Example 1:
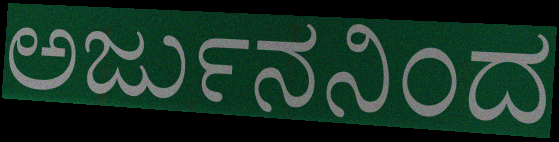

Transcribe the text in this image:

ಅರ್ಜುನನಿಂದ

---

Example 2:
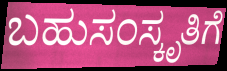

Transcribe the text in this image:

ಬಹುಸಂಸ್ಕೃತಿಗೆ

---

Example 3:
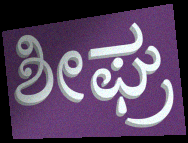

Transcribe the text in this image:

ಶೀಘ್ರ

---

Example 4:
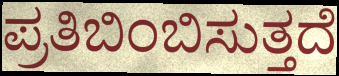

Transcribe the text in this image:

ಪ್ರತಿಬಿಂಬಿಸುತ್ತದೆ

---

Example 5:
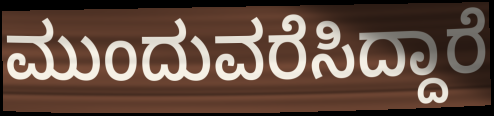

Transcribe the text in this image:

ಮುಂದುವರೆಸಿದ್ದಾರೆ